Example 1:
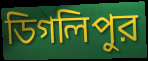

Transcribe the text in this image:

ডিগলিপুর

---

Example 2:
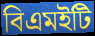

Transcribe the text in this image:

বিএমইটি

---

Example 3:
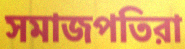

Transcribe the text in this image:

সমাজপতিরা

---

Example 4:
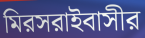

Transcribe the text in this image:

মিরসরাইবাসীর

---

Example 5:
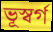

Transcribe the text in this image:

ভূস্বর্গ